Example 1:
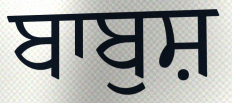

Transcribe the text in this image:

ਬਾਬੁਸ਼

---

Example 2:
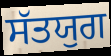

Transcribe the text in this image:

ਸੱਤਯੁਗ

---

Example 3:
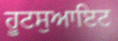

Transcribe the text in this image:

ਹੂਟਸੁਆਇਟ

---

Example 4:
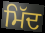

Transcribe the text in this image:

ਮਿੱਦ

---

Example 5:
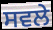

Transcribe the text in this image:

ਸਵਲੇ